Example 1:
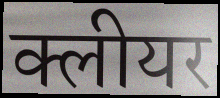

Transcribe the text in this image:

क्लीयर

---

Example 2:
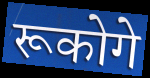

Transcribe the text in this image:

रूकोगे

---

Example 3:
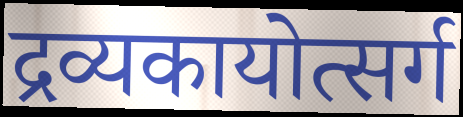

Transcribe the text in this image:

द्रव्यकायोत्सर्ग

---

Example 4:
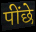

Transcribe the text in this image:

पींछे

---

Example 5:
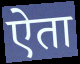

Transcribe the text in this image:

ऐता